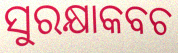
ସୁରକ୍ଷାକବଚ